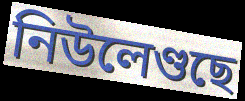
নিউলেণ্ডছে